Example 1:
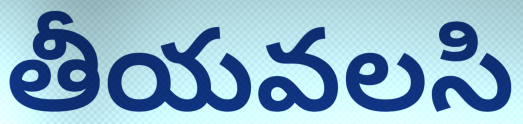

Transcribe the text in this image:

తీయవలసి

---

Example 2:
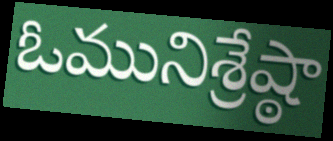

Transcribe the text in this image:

ఓమునిశ్రేష్ఠా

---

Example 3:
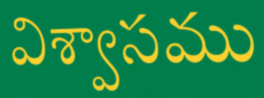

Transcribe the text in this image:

విశ్వాసము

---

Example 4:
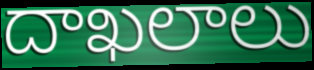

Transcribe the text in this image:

దాఖలాలు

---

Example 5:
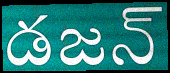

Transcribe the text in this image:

డజన్